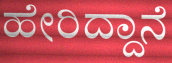
ಹೇರಿದ್ದಾನೆ